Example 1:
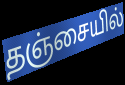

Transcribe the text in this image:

தஞ்சையில்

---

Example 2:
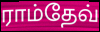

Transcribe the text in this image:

ராம்தேவ்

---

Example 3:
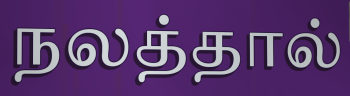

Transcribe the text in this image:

நலத்தால்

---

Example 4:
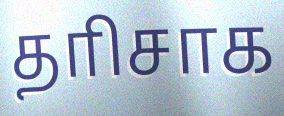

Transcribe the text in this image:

தரிசாக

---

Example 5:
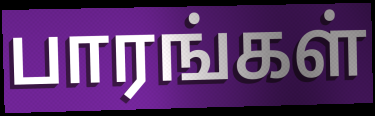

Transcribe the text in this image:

பாரங்கள்